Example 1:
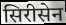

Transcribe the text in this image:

सिरीसेन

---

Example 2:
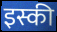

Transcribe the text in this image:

इस्की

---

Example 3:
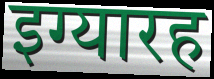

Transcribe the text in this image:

इग्यारह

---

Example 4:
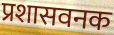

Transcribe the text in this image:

प्रशासवनक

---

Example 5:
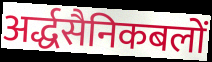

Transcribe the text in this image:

अर्द्धसैनिकबलों